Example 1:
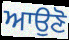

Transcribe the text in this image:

ਆਉਣੋ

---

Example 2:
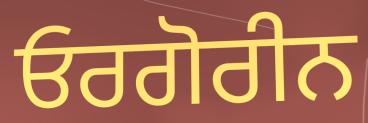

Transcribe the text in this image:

ਓਰਗੋਰੀਨ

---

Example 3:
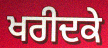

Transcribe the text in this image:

ਖਰੀਦਕੇ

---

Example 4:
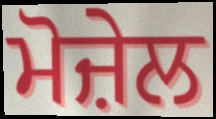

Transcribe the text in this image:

ਮੋਜ਼ੇਲ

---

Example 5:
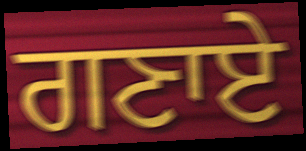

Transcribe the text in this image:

ਗਣਾਏ